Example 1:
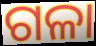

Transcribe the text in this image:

ଗଳା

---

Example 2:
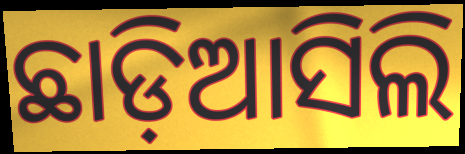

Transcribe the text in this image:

ଛାଡ଼ିଆସିଲି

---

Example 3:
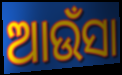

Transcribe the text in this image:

ଆଉଁସା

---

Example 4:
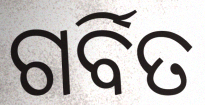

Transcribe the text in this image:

ଗର୍ବିତ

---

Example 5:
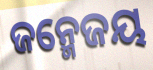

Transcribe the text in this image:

ଜନ୍ମେଜୟ